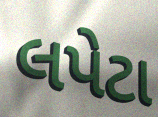
લપેટા